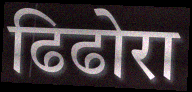
ढिढोरा